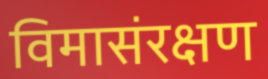
विमासंरक्षण